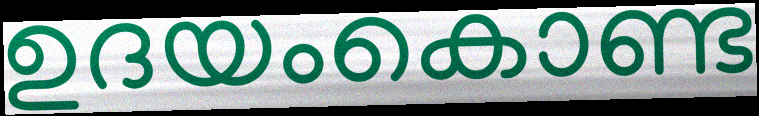
ഉദയംകൊണ്ട